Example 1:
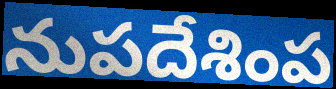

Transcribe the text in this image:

నుపదేశింప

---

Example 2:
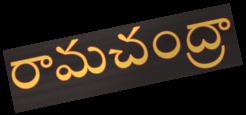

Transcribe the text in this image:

రామచంద్రా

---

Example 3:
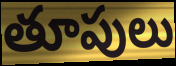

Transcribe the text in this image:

తూపులు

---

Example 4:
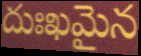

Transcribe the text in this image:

దుఃఖమైన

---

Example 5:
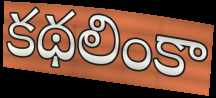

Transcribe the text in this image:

కథలింకా